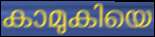
കാമുകിയെ